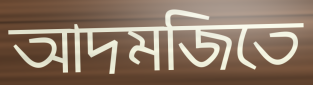
আদমজিতে